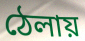
ঠেলায়